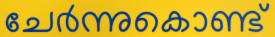
ചേർന്നുകൊണ്ട്